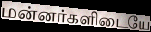
மன்னர்களிடையே